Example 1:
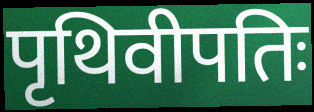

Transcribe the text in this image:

पृथिवीपतिः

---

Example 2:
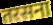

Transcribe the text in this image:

तरसना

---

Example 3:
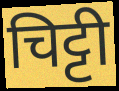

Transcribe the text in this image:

चिट्टी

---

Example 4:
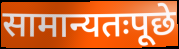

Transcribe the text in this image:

सामान्यतःपूछे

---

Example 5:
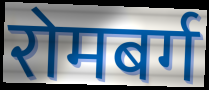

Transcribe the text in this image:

रोमबर्ग